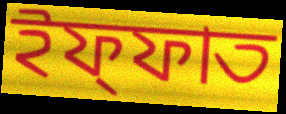
ইফ্ফাত